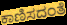
ಕಾಣಿಸದಂತೆ